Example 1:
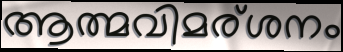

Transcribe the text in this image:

ആത്മവിമര്ശനം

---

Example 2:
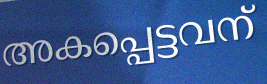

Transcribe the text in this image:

അകപ്പെട്ടവന്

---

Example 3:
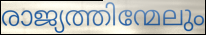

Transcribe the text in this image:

രാജ്യത്തിന്മേലും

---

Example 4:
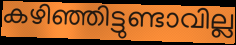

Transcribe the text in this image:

കഴിഞ്ഞിട്ടുണ്ടാവില്ല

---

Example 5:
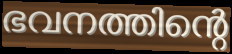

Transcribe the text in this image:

ഭവനത്തിന്റെ